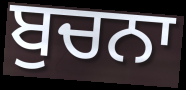
ਬੁਚਨਾ